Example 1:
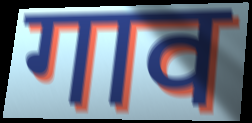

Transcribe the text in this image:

गाव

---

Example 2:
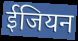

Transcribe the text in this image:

ईजियन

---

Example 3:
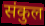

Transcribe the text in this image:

संकुल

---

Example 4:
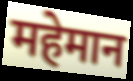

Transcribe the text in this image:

महेमान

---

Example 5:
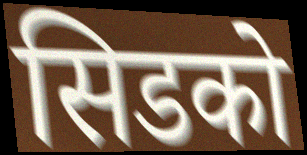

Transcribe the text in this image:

सिडको